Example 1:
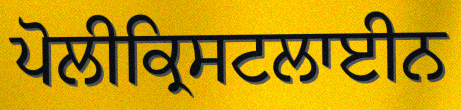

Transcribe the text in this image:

ਪੋਲੀਕ੍ਰਿਸਟਲਾਈਨ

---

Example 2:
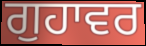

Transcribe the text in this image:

ਗੁਹਾਵਰ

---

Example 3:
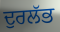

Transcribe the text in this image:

ਦੁਰਲੱਭ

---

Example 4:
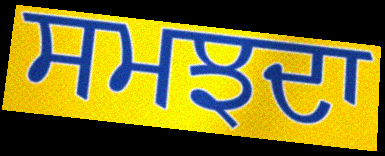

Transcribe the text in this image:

ਸਮਝਦਾ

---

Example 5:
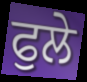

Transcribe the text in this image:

ਫੁਲੇ